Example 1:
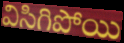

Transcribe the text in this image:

విసిగిపోయి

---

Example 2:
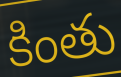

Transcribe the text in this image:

కింతు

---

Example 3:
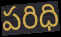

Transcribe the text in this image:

పరిధి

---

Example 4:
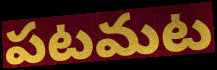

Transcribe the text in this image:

పటమట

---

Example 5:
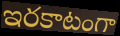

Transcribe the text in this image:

ఇరకాటంగా